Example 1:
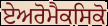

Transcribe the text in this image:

ਏਅਰੋਮੈਕਸਿਕੋ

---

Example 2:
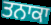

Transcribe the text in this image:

ਤਨਾਕਾ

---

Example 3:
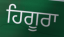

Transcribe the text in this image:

ਹਿਗੂਰਾ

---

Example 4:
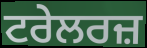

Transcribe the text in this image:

ਟਰੇਲਰਜ਼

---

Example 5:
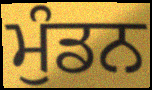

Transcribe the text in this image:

ਮੁੰਡਨ